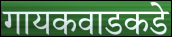
गायकवाडकडे